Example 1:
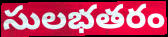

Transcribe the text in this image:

సులభతరం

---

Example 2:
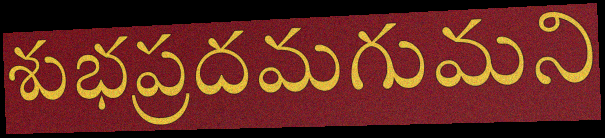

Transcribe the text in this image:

శుభప్రదమగుమని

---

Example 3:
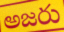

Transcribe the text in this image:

అజరు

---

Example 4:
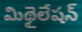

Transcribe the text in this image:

మిథైలేషన్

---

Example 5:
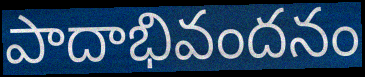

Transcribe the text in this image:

పాదాభివందనం